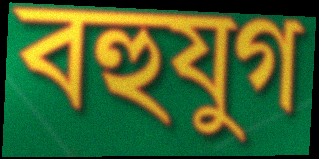
বহুযুগ